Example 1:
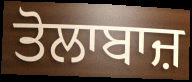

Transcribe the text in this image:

ਤੋਲਾਬਾਜ਼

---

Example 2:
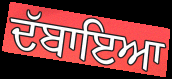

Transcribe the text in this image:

ਦੱਬਾਇਆ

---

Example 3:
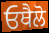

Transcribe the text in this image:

ਓਥੈਲੋ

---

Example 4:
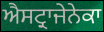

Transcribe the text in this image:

ਐਸਟ੍ਰਾਜੇਨੇਕਾ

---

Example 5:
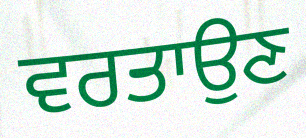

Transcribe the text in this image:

ਵਰਤਾਉਣ